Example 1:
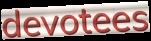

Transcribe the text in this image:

devotees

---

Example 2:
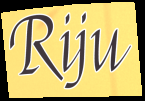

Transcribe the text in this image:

Riju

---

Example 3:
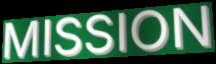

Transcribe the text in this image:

MISSION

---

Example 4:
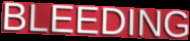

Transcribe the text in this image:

BLEEDING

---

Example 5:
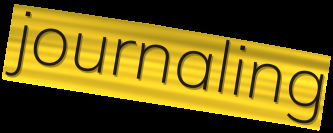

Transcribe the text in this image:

journaling